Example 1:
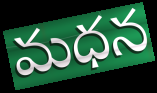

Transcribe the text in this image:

మధన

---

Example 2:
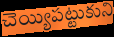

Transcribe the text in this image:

చెయ్యిపట్టుకుని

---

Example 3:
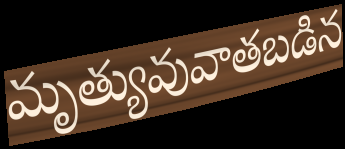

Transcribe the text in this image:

మృత్యువువాతబడిన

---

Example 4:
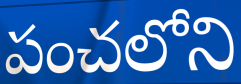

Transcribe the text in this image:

పంచలోని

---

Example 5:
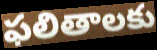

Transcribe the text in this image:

ఫలితాలకు